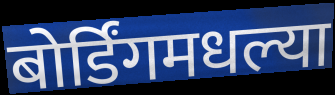
बोर्डिंगमधल्या